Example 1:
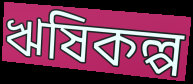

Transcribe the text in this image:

ঋষিকল্প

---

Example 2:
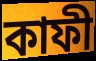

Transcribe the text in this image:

কাফী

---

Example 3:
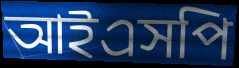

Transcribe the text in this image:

আইএসপি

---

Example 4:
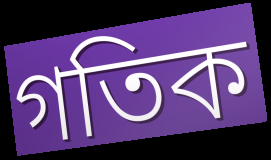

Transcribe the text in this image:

গতিক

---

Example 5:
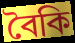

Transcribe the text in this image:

বৈকি